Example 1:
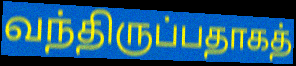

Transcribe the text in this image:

வந்திருப்பதாகத்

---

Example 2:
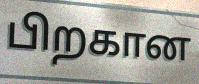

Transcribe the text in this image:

பிறகான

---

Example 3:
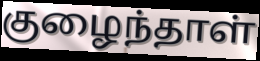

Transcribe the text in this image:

குழைந்தாள்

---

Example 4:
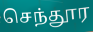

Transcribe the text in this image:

செந்தூர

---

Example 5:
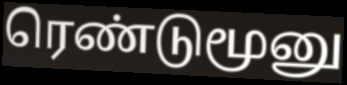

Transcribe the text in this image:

ரெண்டுமூனு